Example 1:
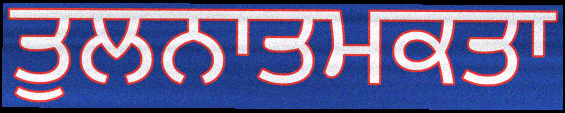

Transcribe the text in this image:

ਤੁਲਨਾਤਮਕਤਾ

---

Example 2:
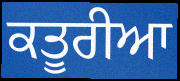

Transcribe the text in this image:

ਕਤੂਰੀਆ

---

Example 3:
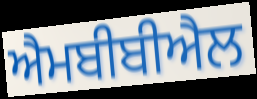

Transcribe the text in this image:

ਐਮਬੀਬੀਐਲ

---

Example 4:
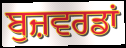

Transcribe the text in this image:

ਬੁਜ਼ਵਰਡਾਂ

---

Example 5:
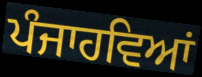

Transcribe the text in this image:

ਪੰਜਾਹਵਿਆਂ